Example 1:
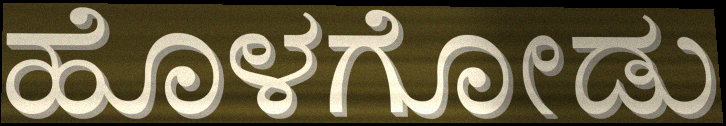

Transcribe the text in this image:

ಹೊಳಗೋಡು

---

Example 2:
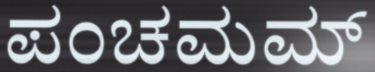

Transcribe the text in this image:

ಪಂಚಮಮ್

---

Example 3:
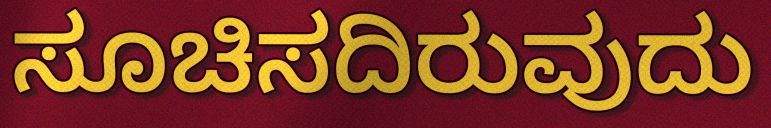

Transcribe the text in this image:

ಸೂಚಿಸದಿರುವುದು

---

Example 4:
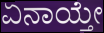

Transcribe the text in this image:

ಏನಾಯ್ತೇ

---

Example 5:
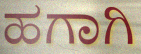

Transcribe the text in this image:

ಹಗಾಗಿ